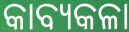
କାବ୍ୟକଳା